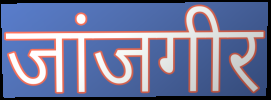
जांजगीर